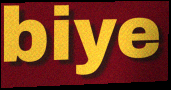
biye